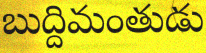
బుద్దిమంతుడు